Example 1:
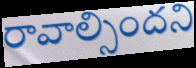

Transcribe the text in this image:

రావాల్సిందని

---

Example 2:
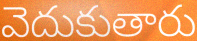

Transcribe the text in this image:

వెదుకుతారు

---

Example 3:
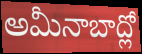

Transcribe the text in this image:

అమీనాబాద్లో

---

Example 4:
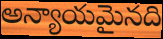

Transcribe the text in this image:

అన్యాయమైనది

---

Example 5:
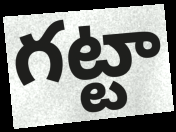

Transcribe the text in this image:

గట్టా